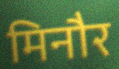
मिनौर